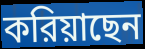
করিয়াছেন